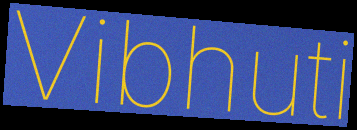
Vibhuti